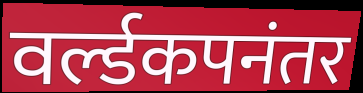
वर्ल्डकपनंतर